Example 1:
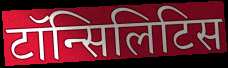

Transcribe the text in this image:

टॉन्सिलिटिस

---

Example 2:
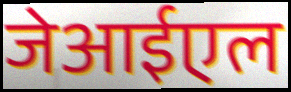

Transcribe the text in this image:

जेआईएल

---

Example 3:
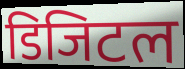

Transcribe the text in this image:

डिजिटल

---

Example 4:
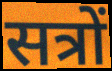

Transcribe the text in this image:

सत्रों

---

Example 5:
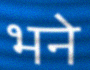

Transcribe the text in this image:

भने